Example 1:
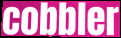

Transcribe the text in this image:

cobbler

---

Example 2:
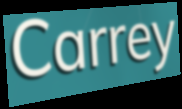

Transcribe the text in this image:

Carrey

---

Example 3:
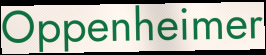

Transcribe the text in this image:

Oppenheimer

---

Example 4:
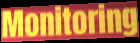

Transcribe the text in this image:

Monitoring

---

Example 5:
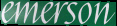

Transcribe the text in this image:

emerson